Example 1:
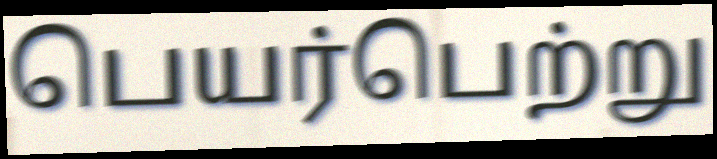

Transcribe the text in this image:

பெயர்பெற்று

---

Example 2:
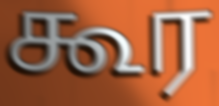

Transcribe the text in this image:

கூர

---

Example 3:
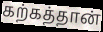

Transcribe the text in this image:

கற்கத்தான்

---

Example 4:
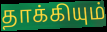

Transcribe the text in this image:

தாக்கியும்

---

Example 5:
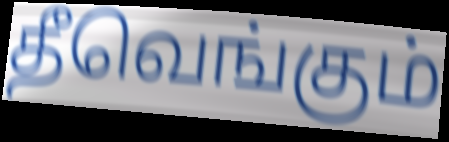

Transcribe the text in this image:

தீவெங்கும்